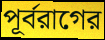
পূর্বরাগের